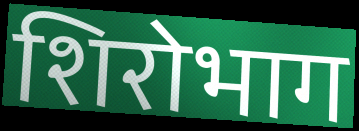
शिरोभाग